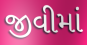
જીવીમાં